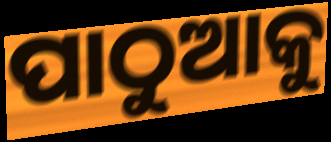
ପାଠୁଆକୁ